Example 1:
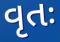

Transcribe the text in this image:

વૃતઃ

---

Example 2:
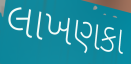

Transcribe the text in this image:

લાખણકા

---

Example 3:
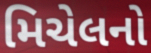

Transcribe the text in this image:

મિચેલનો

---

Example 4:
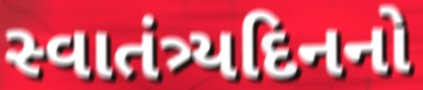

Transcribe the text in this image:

સ્વાતંત્ર્યદિનનો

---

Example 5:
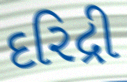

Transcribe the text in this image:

દરિદ્રી